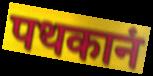
पथकानं